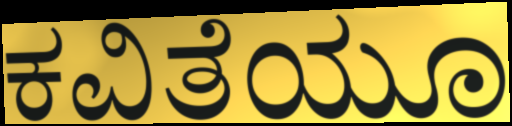
ಕವಿತೆಯೂ